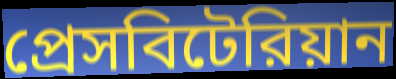
প্রেসবিটেরিয়ান